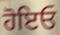
ਹੋਇਓ